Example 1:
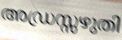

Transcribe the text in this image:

അഡ്രസ്സഴുതി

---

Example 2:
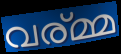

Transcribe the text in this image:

വര്മ്മ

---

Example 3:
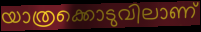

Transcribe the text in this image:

യാത്രക്കൊടുവിലാണ്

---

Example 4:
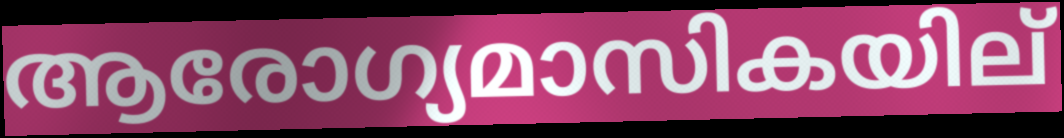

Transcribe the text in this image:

ആരോഗ്യമാസികയില്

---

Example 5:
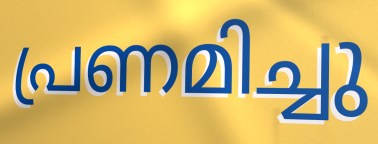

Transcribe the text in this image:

പ്രണമിച്ചു